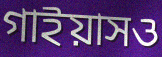
গাইয়াসও